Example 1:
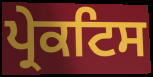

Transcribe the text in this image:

ਪ੍ਰੇਕਟਿਸ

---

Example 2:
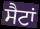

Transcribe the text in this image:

ਸੈਟਾਂ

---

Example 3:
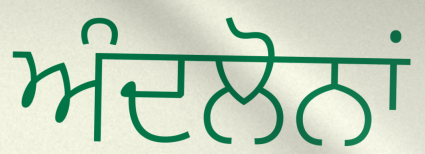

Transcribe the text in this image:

ਅੰਦਲੋਨਾਂ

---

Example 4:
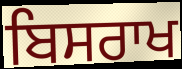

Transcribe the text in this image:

ਬਿਸਰਾਖ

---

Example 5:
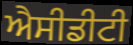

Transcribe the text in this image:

ਐਸੀਡੀਟੀ